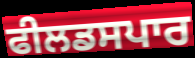
ਫੀਲਡਸਪਾਰ